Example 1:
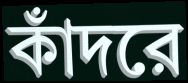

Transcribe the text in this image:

কাঁদরে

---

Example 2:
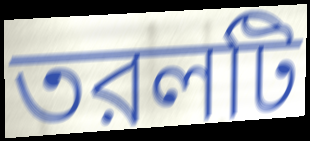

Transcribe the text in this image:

তরলটি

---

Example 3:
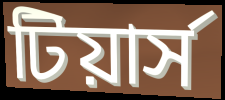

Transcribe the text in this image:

টিয়ার্স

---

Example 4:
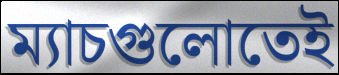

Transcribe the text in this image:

ম্যাচগুলোতেই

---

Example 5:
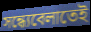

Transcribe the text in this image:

সন্ধ্যেবেলাতেই